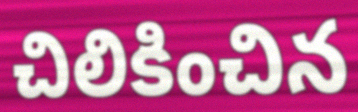
చిలికించిన